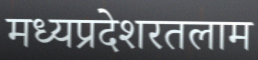
मध्यप्रदेशरतलाम